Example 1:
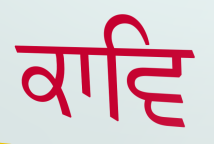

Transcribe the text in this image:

ਕਾਵਿ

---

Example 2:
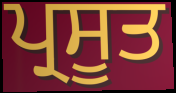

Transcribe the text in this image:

ਪ੍ਰਸੂਤ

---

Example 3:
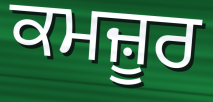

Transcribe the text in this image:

ਕਮਜ਼ੂਰ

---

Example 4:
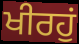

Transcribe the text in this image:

ਖੀਰਹੁਂ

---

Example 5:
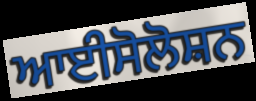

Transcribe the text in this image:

ਆਈਸੋਲੋਸ਼ਨ